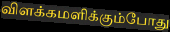
விளக்கமளிக்கும்போது